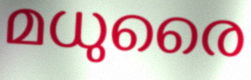
മധുരൈ